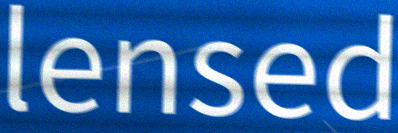
lensed